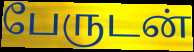
பேருடன்